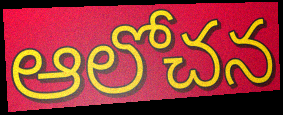
ఆలోచన